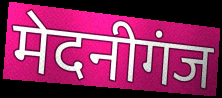
मेदनीगंज